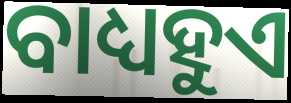
ବାଧ୍ୟହୁଏ